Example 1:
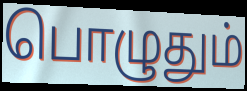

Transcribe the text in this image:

பொழுதும்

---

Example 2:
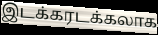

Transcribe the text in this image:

இடக்கரடக்கலாக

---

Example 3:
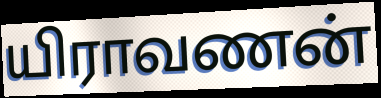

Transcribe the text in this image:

யிராவணன்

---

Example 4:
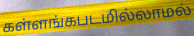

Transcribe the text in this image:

கள்ளங்கபடமில்லாமல்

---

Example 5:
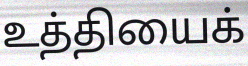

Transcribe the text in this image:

உத்தியைக்